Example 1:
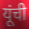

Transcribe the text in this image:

यूंची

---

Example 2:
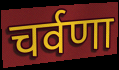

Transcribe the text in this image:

चर्वणा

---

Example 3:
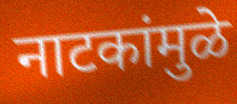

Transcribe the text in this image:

नाटकांमुळे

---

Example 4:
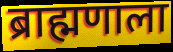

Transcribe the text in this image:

ब्राह्मणाला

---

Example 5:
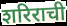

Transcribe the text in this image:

शरिराची